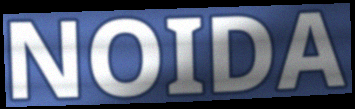
NOIDA